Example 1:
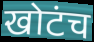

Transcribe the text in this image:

खोटंच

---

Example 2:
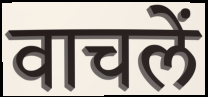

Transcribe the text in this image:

वाचलें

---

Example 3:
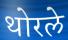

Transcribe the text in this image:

थोरले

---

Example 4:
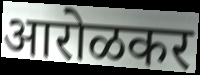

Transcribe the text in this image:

आरोळकर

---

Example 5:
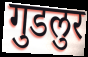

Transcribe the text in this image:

गुडलुर